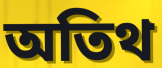
অতিথ